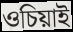
ওচিয়াই